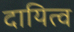
दायित्व